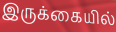
இருக்கையில்